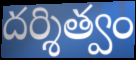
దర్శిత్వం